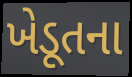
ખેડૂતના